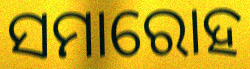
ସମାରୋହ